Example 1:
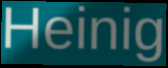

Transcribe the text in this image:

Heinig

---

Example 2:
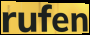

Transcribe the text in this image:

rufen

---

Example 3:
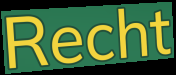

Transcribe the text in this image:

Recht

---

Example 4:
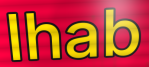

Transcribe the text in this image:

Ihab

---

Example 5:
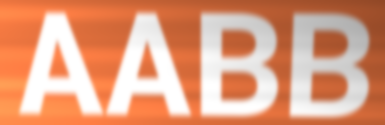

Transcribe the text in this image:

AABB